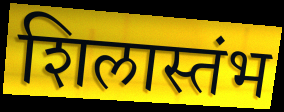
शिलास्तंभ